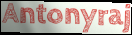
Antonyraj